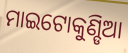
ମାଇଟୋକୁଣ୍ଡିଆ